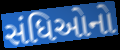
સંધિઓનો